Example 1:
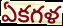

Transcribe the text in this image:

ఏకగళ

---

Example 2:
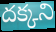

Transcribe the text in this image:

దక్కని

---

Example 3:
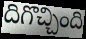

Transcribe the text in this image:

దిగొచ్చింది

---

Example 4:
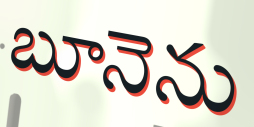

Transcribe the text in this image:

బూనెను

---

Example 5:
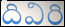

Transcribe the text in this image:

దివిరి